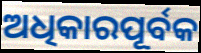
ଅଧିକାରପୂର୍ବକ